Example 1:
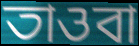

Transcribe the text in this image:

তাওবা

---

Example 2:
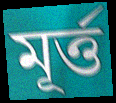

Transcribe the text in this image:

মূর্ত্ত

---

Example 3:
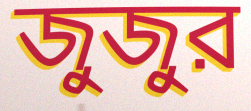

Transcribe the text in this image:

জুজুর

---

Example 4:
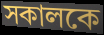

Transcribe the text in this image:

সকালকে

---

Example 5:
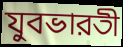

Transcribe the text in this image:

যুবভারতী